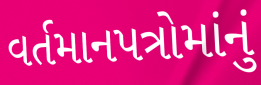
વર્તમાનપત્રોમાંનું